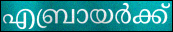
എബ്രായർക്ക്